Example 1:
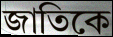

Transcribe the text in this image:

জাতিকে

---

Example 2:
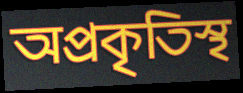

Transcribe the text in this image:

অপ্রকৃতিস্থ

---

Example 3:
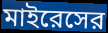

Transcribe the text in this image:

মাইরেসের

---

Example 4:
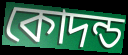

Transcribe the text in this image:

কোদন্ড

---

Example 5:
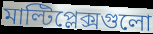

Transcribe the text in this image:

মাল্টিপ্লেক্সগুলো